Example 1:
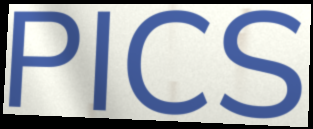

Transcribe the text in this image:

PICS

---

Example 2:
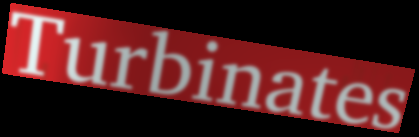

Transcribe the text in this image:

Turbinates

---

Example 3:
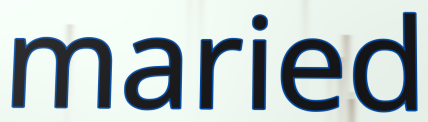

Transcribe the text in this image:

maried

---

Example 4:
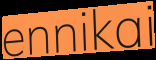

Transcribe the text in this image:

ennikai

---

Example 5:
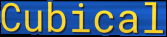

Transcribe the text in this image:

Cubical